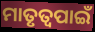
ମାତୃତ୍ୱପାଇଁ